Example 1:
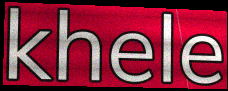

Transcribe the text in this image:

khele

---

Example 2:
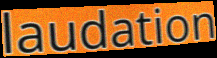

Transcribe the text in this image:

laudation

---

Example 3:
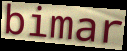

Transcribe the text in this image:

bimar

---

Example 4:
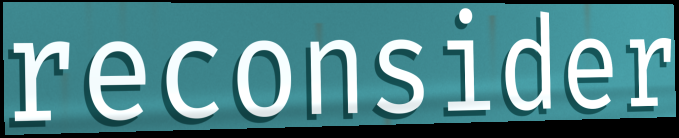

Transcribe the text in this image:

reconsider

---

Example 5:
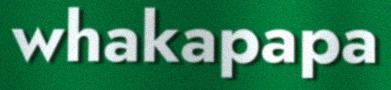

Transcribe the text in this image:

whakapapa